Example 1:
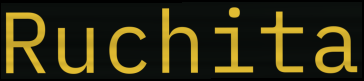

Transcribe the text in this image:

Ruchita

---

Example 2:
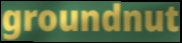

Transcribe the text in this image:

groundnut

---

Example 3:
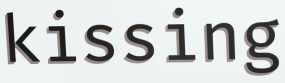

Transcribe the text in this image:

kissing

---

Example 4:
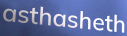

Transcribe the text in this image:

asthasheth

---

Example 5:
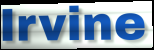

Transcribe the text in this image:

Irvine